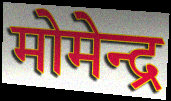
मोमेन्द्र